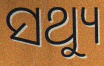
ସଥ୍ୟୁ